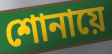
শোনায়ে